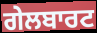
ਗੇਲਬਾਰਟ